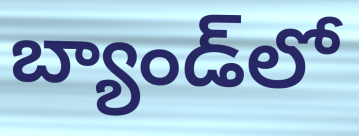
బ్యాండ్‌లో